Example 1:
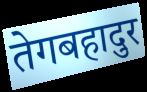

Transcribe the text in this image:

तेगबहादुर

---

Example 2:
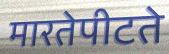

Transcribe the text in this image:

मारतेपीटते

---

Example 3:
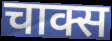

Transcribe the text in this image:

चाक्स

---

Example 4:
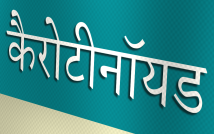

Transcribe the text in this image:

कैरोटीनॉयड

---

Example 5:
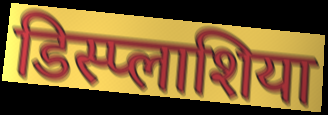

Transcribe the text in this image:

डिस्प्लाशिया